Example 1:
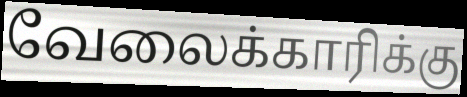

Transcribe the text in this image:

வேலைக்காரிக்கு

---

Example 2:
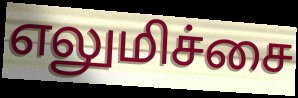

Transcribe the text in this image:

எலுமிச்சை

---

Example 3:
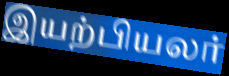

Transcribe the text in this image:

இயற்பியலர்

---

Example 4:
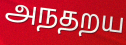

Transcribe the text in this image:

அநதறய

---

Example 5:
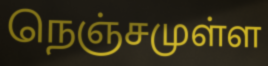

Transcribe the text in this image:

நெஞ்சமுள்ள